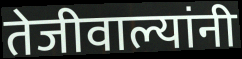
तेजीवाल्यांनी